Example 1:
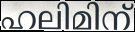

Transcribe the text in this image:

ഹലിമിന്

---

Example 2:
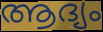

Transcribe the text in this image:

ആദ്യം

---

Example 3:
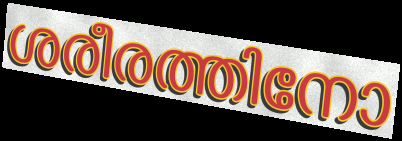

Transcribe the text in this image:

ശരീരത്തിനോ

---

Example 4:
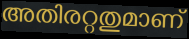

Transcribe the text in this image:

അതിരറ്റതുമാണ്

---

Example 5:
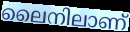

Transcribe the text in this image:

ലൈനിലാണ്